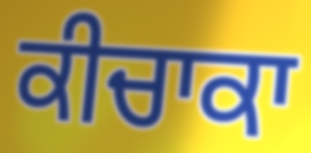
ਕੀਚਾਕਾ